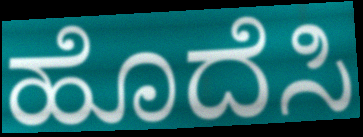
ಹೊದೆಸಿ